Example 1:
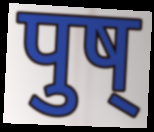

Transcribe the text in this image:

पुष्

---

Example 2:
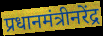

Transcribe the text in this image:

प्रधानमंत्रीनरेंद्र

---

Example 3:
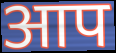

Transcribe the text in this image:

आप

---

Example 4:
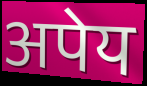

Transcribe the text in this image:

अपेय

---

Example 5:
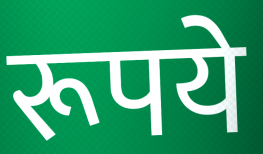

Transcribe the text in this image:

रूपये